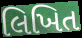
લિખિત